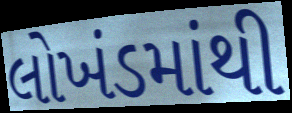
લોખંડમાંથી